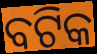
ବଟିକ